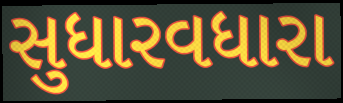
સુધારવધારા